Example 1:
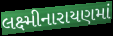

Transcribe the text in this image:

લક્ષ્મીનારાયણમાં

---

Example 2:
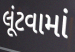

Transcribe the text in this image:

લૂંટવામાં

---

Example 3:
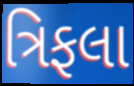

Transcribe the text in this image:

ત્રિફલા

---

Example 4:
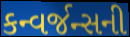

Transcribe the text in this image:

કન્વર્જન્સની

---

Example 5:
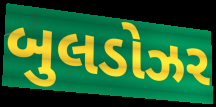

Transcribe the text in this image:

બુલડોઝર